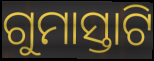
ଗୁମାସ୍ତାଟି